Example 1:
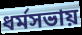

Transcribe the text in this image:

ধর্মসভায়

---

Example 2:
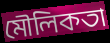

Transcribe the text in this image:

মৌলিকতা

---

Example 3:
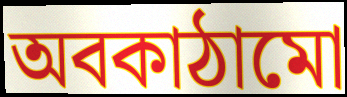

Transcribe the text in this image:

অবকাঠামো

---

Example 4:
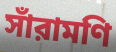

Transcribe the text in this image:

সাঁরামণি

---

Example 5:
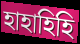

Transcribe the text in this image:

হাহাহিহি